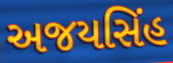
અજયસિંહ